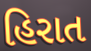
હિરાત